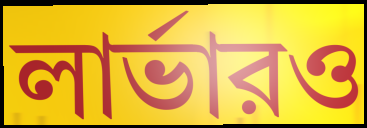
লার্ভারও